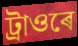
ট্ৰাওৰে